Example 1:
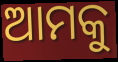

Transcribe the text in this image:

ଆମକୁ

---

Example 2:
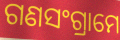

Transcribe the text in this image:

ଗଣସଂଗ୍ରାମେ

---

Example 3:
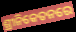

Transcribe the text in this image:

ଶ୍ରୀନିକେତନରେ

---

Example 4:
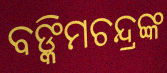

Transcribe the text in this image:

ବଙ୍କିମଚନ୍ଦ୍ରଙ୍କ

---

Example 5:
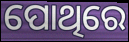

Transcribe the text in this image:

ପୋଥିରେ